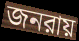
জনরায়